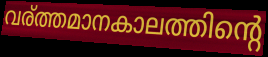
വര്ത്തമാനകാലത്തിന്റെ